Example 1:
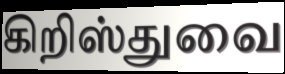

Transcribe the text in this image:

கிறிஸ்துவை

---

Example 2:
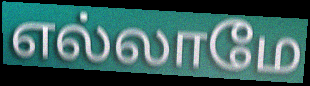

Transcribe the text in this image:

எல்லாமே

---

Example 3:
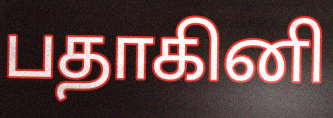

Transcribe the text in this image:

பதாகினி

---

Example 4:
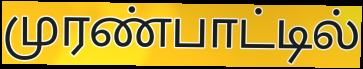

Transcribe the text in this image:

முரண்பாட்டில்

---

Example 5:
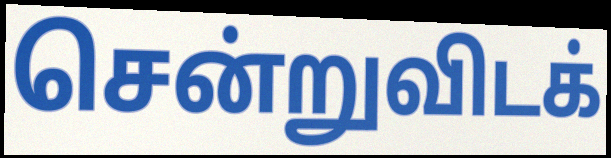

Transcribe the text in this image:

சென்றுவிடக்